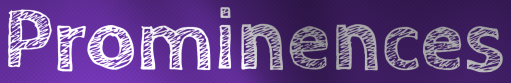
Prominences